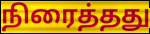
நிரைத்தது